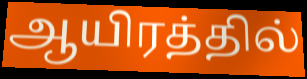
ஆயிரத்தில்